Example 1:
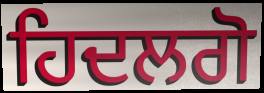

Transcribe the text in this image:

ਹਿਦਲਗੋ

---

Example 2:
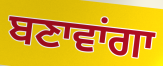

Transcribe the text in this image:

ਬਣਾਵਾਂਗਾ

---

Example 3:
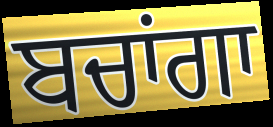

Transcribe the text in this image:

ਬਚਾਂਗਾ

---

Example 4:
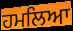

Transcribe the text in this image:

ਹਮਲਿਆ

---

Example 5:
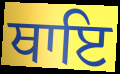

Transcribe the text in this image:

ਥਾਇ